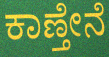
ಕಾಣ್ತೇನೆ